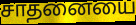
சாதனையை